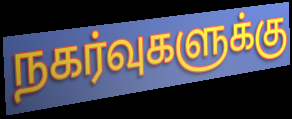
நகர்வுகளுக்கு